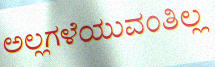
ಅಲ್ಲಗಳೆಯುವಂತಿಲ್ಲ